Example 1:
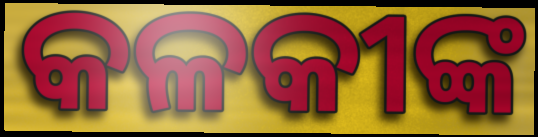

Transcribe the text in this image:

କଳକୀଙ୍କ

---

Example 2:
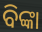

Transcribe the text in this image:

ବିଙ୍କା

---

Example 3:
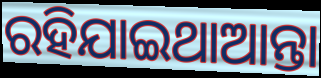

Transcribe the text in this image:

ରହିଯାଇଥାଆନ୍ତା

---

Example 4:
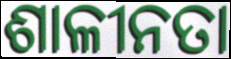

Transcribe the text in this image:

ଶାଳୀନତା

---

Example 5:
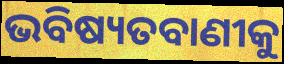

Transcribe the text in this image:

ଭବିଷ୍ୟତବାଣୀକୁ